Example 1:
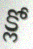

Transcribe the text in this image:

క్లో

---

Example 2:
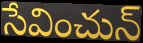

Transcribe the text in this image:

సేవించున్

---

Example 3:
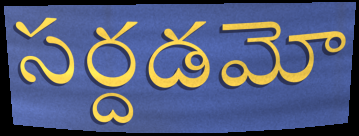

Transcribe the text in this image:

సర్దడమో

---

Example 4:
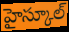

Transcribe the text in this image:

హైస్కూల్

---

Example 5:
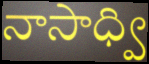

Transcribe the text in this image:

నాసాధ్వి